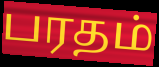
பரதம்